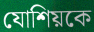
যোশিয়কে